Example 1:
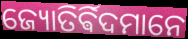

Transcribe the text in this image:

ଜ୍ୟୋତିର୍ଵିଦମାନେ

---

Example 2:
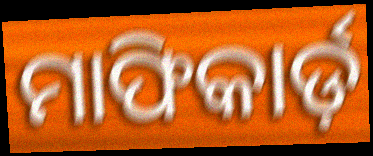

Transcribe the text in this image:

ମାଫିକାର୍ଡ଼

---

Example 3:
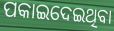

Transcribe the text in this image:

ପକାଇଦେଇଥିବା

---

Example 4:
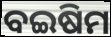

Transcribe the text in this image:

ବଇଷିମ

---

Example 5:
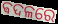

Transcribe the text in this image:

ଵଦଳରେ